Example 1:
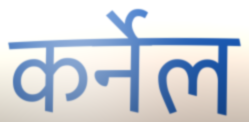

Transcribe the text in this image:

कर्नेल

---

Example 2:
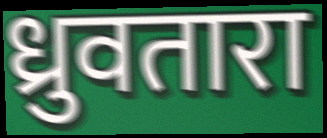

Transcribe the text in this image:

ध्रुवतारा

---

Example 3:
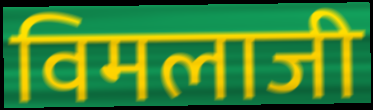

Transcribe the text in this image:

विमलाजी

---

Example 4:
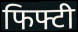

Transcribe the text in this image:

फिफ्टी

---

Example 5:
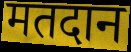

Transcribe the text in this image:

मतदान